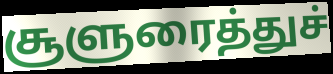
சூளுரைத்துச்